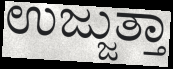
ಉಜ್ಜುತ್ತಾ